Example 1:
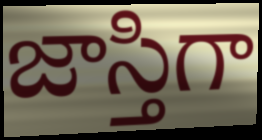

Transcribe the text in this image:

జాస్తిగా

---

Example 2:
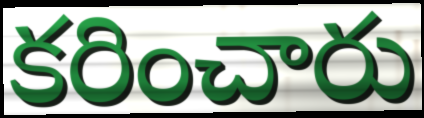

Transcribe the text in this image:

కరించారు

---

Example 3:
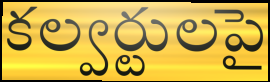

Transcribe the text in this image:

కల్వర్టులపై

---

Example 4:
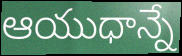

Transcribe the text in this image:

ఆయుధాన్నే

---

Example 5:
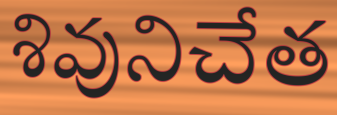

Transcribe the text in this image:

శివునిచేత